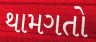
થામગતો